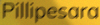
Pillipesara